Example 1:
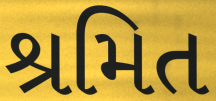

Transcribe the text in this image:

શ્રમિત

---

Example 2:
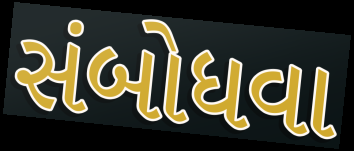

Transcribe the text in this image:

સંબોધવા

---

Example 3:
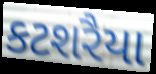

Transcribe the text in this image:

કટશરૈયા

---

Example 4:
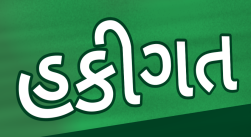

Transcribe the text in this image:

હકીગત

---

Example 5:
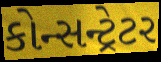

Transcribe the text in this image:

કોન્સન્ટ્રેટર